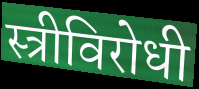
स्त्रीविरोधी